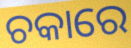
ଚକାରେ